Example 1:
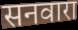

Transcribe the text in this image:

सनवारा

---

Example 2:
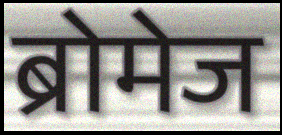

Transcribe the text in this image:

ब्रोमेज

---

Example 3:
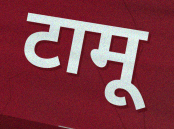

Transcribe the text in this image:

टामू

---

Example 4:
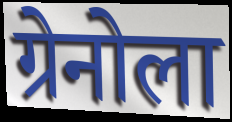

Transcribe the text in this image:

ग्रेनोला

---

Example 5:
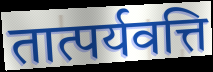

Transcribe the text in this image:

तात्पर्यवत्ति